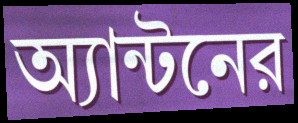
অ্যান্টনের